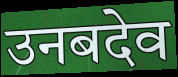
उनबदेव